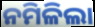
ନମିଳିଲା